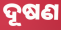
ଦୂଷଣ